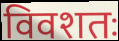
विवशतः